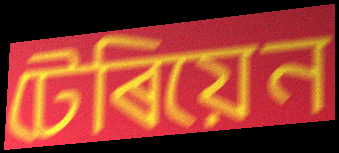
টেৰিয়েন